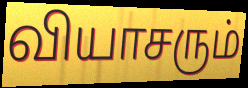
வியாசரும்